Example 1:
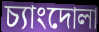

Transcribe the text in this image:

চ্যাংদোলা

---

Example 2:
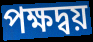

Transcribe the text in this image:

পক্ষদ্বয়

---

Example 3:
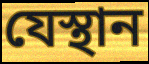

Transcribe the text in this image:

যেস্থান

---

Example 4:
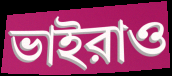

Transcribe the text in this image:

ভাইরাও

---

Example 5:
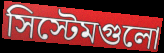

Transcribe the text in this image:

সিস্টেমগুলো